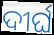
ଦୀର୍ଘ